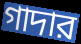
গাদার